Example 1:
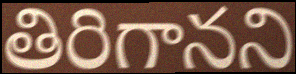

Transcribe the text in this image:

తిరిగానని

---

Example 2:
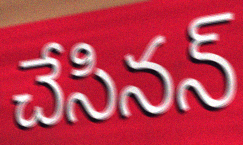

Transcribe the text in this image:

చేసినన్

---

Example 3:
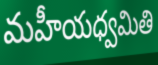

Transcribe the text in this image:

మహీయధ్వమితి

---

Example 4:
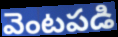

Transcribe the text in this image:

వెంటపడి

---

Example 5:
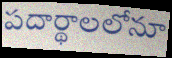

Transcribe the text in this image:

పదార్థాలలోనూ